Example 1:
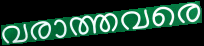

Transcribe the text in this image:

വരാത്തവരെ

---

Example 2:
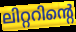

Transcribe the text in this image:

ലിറ്ററിന്റെ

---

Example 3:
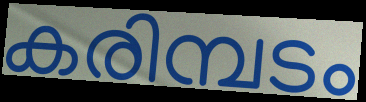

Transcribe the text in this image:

കരിമ്പടം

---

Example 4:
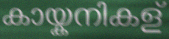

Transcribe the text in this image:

കായ്കനികള്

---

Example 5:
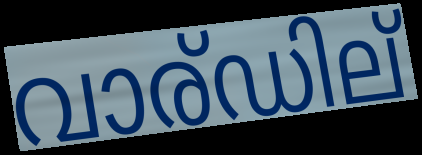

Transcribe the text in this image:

വാര്ഡില്